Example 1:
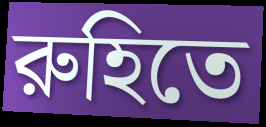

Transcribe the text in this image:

রুহিতে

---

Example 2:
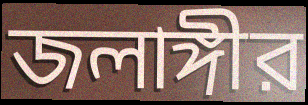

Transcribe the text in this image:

জলাঙ্গীর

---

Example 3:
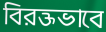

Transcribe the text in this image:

বিরক্তভাবে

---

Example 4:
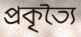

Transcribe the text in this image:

প্রকৃত্যৈ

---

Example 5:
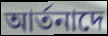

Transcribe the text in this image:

আর্তনাদে